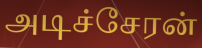
அடிச்சேரன்